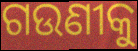
ଗଉଣୀକୁ